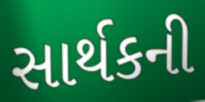
સાર્થકની